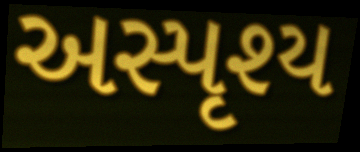
અસ્પૃશ્ય